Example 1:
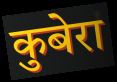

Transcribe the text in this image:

कुबेरा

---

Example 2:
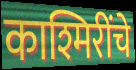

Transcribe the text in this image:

काश्मिरींचे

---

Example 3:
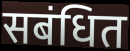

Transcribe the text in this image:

सबंधित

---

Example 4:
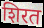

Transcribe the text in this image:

शिरत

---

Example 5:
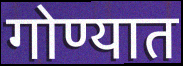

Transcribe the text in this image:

गोण्यात